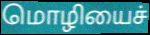
மொழியைச்